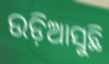
ଉଡ଼ିଆସୁଛି